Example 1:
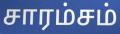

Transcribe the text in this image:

சாரம்சம்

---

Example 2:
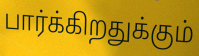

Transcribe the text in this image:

பார்க்கிறதுக்கும்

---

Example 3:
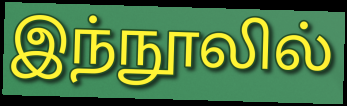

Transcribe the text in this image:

இந்நூலில்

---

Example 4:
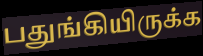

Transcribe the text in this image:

பதுங்கியிருக்க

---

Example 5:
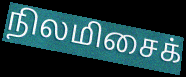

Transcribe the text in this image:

நிலமிசைக்